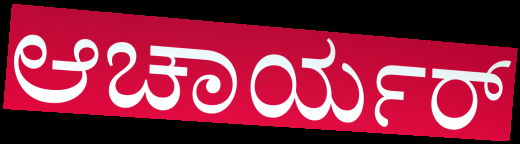
ಆಚಾರ್ಯರ್